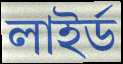
লাইর্ড